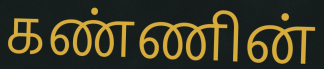
கண்ணின்